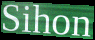
Sihon